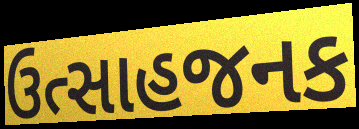
ઉત્સાહજનક